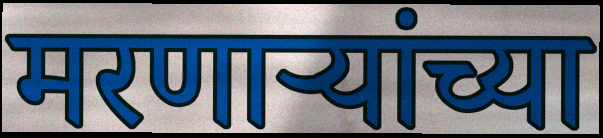
मरणाऱ्यांच्या